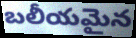
బలీయమైన